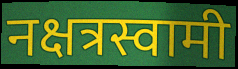
नक्षत्रस्वामी